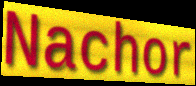
Nachor